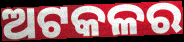
ଅଟକଳର